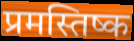
प्रमस्तिष्क